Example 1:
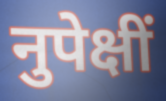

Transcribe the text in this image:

नुपेक्षीं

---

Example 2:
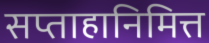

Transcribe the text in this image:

सप्ताहानिमित्त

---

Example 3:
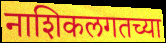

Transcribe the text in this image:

नाशिकलगतच्या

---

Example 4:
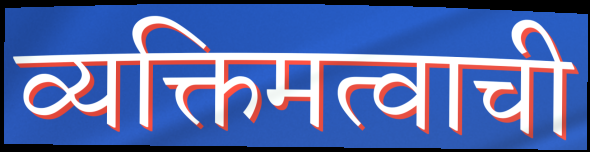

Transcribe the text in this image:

व्यक्तिमत्वाची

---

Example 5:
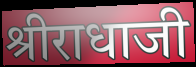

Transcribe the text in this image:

श्रीराधाजी